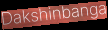
Dakshinbanga